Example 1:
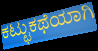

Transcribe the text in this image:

ಕಟ್ಟುಕಥೆಯಾಗಿ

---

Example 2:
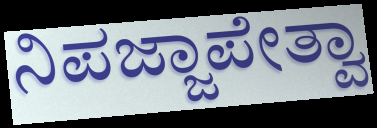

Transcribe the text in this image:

ನಿಪಜ್ಜಾಪೇತ್ವಾ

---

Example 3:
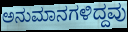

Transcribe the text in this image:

ಅನುಮಾನಗಳಿದ್ದವು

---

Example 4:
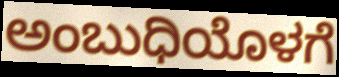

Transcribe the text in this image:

ಅಂಬುಧಿಯೊಳಗೆ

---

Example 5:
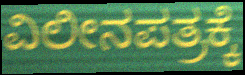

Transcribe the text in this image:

ವಿಲೀನಪತ್ರಕ್ಕೆ